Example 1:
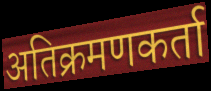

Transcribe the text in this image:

अतिक्रमणकर्ता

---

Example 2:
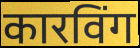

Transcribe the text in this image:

कारविंग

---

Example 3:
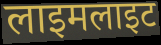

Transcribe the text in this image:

लाइमलाइट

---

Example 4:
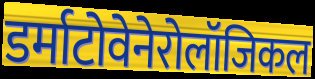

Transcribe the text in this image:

डर्माटोवेनेरोलॉजिकल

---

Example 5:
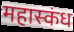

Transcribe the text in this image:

महास्कंध